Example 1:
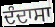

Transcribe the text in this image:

ਦੰਦਾਸਾ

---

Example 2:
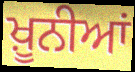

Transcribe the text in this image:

ਖ਼ੂਨੀਆਂ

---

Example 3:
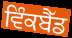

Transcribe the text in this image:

ਵਿੰਕਬੈੱਡ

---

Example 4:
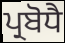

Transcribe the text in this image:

ਪ੍ਰਬੋਧੈ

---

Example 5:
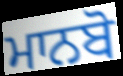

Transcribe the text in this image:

ਮਾਨਬੋ